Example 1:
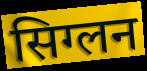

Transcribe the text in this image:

सिग्‍लन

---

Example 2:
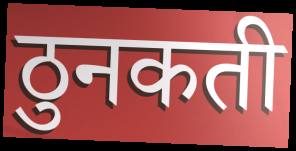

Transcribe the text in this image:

ठुनकती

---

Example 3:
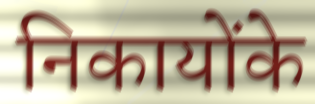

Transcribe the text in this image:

निकायोंके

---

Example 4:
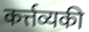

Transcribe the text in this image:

कर्त्तव्यकी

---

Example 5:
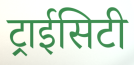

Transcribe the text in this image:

ट्राईसिटी